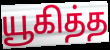
யூகித்த